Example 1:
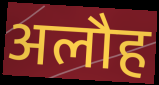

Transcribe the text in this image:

अलौह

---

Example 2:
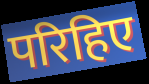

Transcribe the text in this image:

परिहिए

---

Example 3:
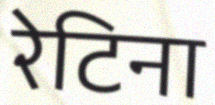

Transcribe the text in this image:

रेटिना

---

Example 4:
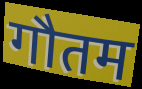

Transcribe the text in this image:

गौतम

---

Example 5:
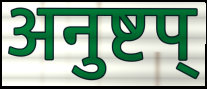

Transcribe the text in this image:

अनुष्टप्